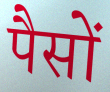
पैसों